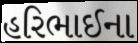
હરિભાઈના